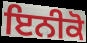
ਇਨੀਕੋ